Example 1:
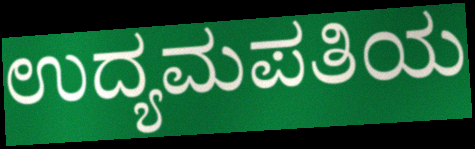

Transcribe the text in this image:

ಉದ್ಯಮಪತಿಯ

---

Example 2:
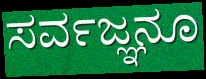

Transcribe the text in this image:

ಸರ್ವಜ್ಞನೂ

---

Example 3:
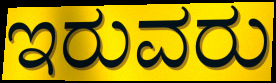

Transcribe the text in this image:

ಇರುವರು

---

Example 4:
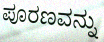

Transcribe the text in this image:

ಪೂರಣವನ್ನು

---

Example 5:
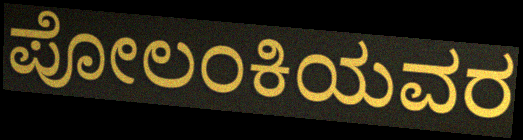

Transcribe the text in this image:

ಪೋಲಂಕಿಯವರ